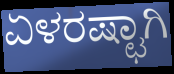
ಏಳರಷ್ಟಾಗಿ